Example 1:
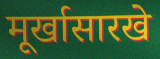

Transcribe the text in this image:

मूर्खासारखे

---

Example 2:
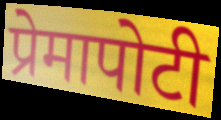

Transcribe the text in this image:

प्रेमापोटी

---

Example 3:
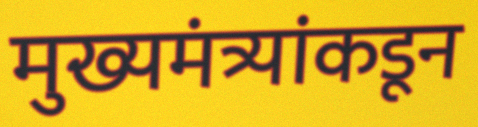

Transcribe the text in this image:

मुख्यमंत्र्यांकडून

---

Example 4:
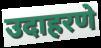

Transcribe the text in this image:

उदाहरणे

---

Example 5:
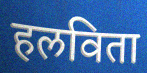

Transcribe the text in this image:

हलविता